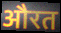
औरत